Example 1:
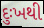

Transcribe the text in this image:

દુઃખથી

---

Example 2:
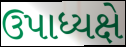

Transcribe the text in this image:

ઉપાધ્યક્ષે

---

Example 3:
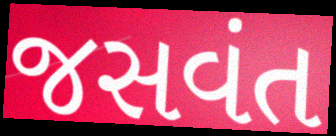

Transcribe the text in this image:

જસવંત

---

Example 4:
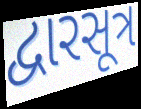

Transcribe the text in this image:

દ્વારસૂત્ર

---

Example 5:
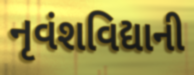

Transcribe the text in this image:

નૃવંશવિદ્યાની